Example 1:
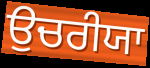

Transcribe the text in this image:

ਉਚਰੀਯਾ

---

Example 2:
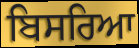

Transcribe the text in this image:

ਬਿਸਰਿਆ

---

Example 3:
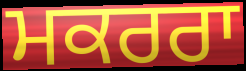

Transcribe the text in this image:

ਮਕਰਰਾ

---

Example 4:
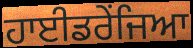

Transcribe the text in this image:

ਹਾਈਡਰੇਂਜਿਆ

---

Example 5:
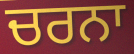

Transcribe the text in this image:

ਚਰਨਾ